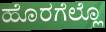
ಹೊರಗೆಲ್ಲೊ